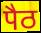
पैठ